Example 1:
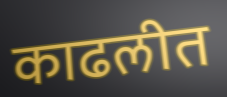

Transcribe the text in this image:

काढलीत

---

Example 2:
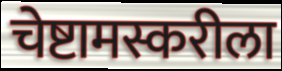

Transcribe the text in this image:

चेष्टामस्करीला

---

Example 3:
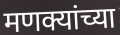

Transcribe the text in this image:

मणक्यांच्या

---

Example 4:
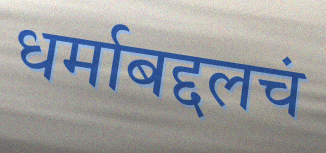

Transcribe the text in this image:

धर्माबद्दलचं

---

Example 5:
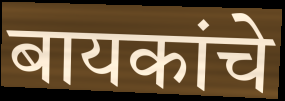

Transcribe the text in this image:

बायकांचे